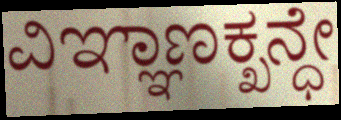
ವಿಞ್ಞಾಣಕ್ಖನ್ಧೇ